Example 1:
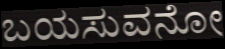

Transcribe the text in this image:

ಬಯಸುವನೋ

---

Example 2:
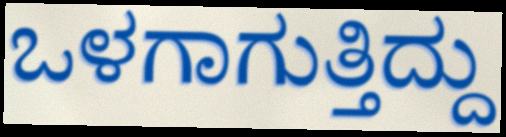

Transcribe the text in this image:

ಒಳಗಾಗುತ್ತಿದ್ದು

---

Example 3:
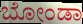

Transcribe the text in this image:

ಬೋಂಡಾ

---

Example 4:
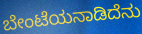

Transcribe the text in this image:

ಬೇಂಟೆಯನಾಡಿದೆನು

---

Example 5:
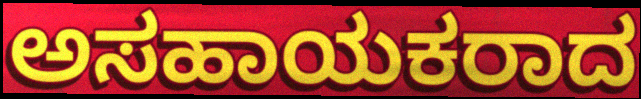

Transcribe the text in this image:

ಅಸಹಾಯಕರಾದ